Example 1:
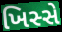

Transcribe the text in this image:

ખિસ્સે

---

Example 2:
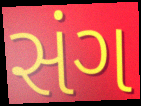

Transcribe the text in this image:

સંગ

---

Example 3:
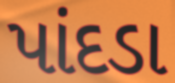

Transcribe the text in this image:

પાંદડા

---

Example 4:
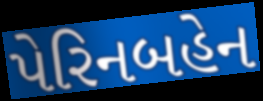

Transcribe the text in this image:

પેરિનબહેન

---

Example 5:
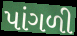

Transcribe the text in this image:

પાંગળી